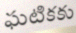
ఘటికకు